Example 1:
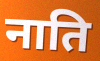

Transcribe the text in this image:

नाति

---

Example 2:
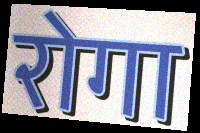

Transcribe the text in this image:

रोगा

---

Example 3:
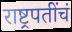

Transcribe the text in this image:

राष्ट्रपतींचं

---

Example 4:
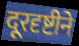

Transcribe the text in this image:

दूरदृष्टीने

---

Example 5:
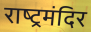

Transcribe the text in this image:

राष्ट्रमंदिर